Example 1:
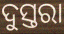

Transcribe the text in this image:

ଦୁସ୍ତରା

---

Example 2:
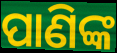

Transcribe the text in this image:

ପାଣିଙ୍କ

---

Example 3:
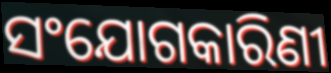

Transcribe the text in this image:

ସଂଯୋଗକାରିଣୀ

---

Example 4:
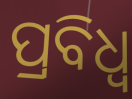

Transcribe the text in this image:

ପ୍ରବିଧ୍ଵ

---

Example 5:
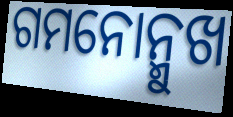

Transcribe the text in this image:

ଗମନୋନ୍ମୁଖ